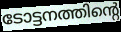
ടോട്ടനത്തിന്റെ